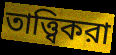
তাত্ত্বিকরা